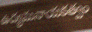
ఉద్యమనాయకత్వం